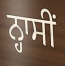
ਨ੍ਹਾਸੀਂ